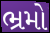
ભ્રમો